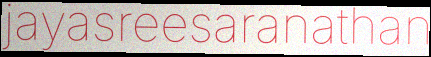
jayasreesaranathan